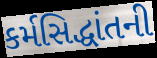
કર્મસિદ્ધાંતની